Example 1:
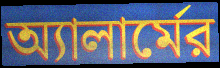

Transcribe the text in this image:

অ্যালার্মের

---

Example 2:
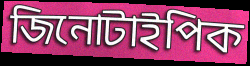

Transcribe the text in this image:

জিনোটাইপিক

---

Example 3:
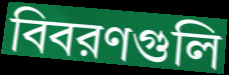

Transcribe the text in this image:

বিবরণগুলি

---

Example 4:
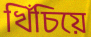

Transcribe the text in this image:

খিঁচিয়ে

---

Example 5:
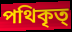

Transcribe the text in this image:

পথিকৃত্